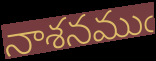
నాశనముఁ